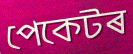
পেকেটৰ